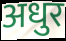
अधुर